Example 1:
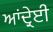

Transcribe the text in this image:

ਆਂਦ੍ਰੇਈ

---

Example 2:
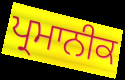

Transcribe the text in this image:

ਪ੍ਰਮਾਨੀਕ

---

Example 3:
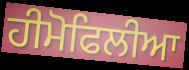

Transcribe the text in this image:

ਹੀਮੋਫਿਲੀਆ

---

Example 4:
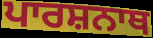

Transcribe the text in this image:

ਪਾਰਸ਼ਨਾਥ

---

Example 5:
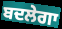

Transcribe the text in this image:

ਬਦਲੇਗਾ